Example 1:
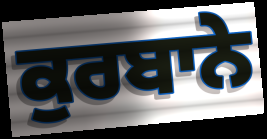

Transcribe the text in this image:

ਕੁਰਬਾਨੇ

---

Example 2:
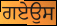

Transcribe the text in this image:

ਗਏਉਸ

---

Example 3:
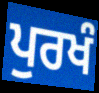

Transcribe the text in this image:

ਪੁਰਖੰ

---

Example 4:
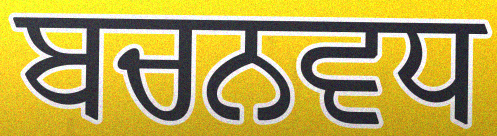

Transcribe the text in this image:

ਬਚਨਵਧ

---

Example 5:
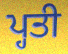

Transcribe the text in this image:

ਪ੍ਹਤੀ